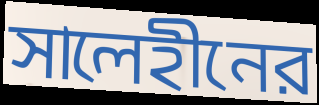
সালেহীনের